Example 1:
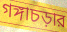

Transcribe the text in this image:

গঙ্গাচড়ার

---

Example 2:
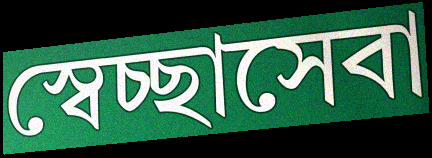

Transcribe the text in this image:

স্বেচ্ছাসেবা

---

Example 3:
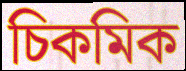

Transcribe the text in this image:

চিকমিক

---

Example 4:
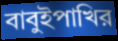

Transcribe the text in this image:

বাবুইপাখির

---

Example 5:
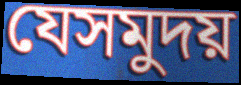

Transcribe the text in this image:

যেসমুদয়